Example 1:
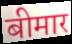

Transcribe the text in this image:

बीमार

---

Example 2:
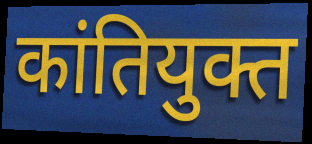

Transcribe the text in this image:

कांतियुक्त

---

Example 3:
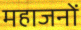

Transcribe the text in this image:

महाजनों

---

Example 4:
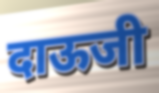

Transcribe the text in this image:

दाऊजी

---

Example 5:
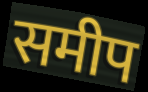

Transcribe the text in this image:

समीप